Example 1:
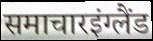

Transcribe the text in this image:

समाचारइंग्लैंड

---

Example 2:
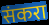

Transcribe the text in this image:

संकरा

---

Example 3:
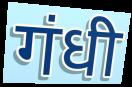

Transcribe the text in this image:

गंधी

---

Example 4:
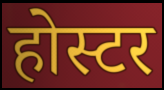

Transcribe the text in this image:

होस्टर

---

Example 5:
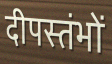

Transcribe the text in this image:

दीपस्तंभों